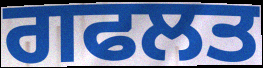
ਗਫਲਤ